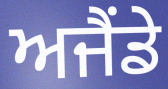
ਅਜੈਂਡੇ